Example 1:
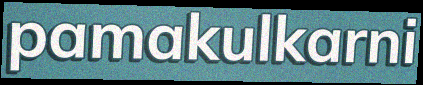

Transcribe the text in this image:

pamakulkarni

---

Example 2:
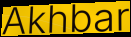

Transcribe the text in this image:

Akhbar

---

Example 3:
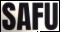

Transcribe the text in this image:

SAFU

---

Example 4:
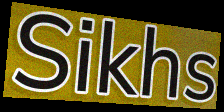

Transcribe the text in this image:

Sikhs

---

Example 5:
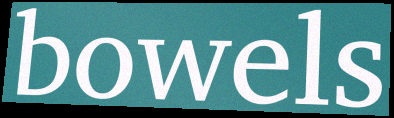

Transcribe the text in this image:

bowels